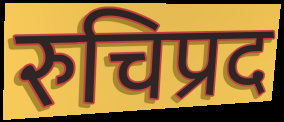
रुचिप्रद